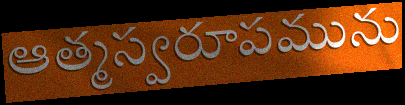
ఆత్మస్వరూపమును